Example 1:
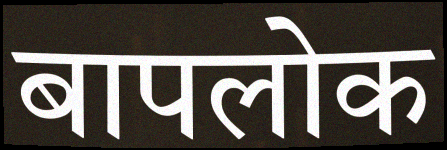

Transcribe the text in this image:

बापलोक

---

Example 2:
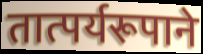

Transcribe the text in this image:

तात्पर्यरूपाने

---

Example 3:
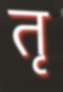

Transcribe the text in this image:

तृ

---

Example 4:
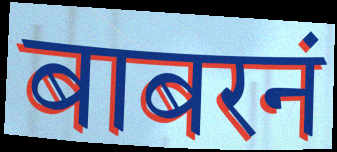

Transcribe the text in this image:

बाबरनं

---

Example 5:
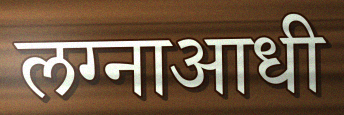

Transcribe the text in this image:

लग्नाआधी